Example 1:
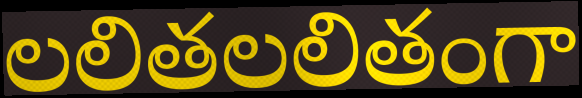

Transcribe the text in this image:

లలితలలితంగా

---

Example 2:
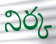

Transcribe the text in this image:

నిర్క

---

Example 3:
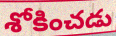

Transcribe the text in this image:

శోకించడు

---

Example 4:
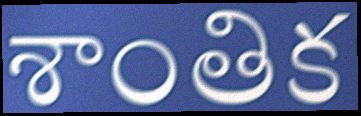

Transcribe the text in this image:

శాంతిక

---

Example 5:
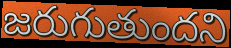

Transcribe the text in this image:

జరుగుతుందని